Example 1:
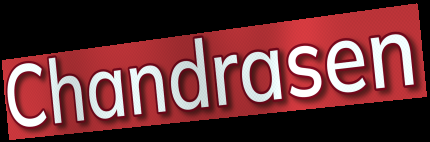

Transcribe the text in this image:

Chandrasen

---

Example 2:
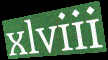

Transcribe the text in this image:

xlviii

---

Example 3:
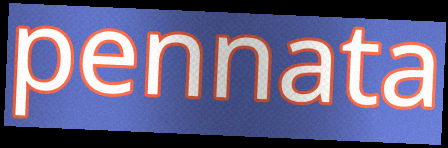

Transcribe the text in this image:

pennata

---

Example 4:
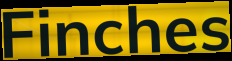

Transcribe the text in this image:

Finches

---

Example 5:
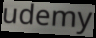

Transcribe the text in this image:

udemy